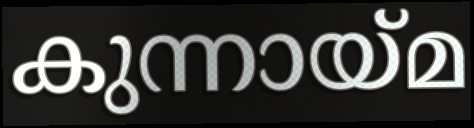
കുന്നായ്മ